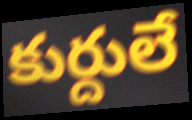
కుర్దులే